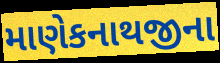
માણેકનાથજીના